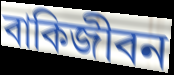
বাকিজীবন